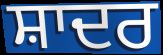
ਸ਼ਾਦਰ